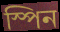
স্পিন